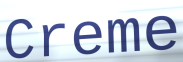
Creme